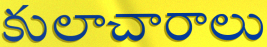
కులాచారాలు